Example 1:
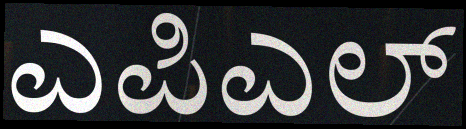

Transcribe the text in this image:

ಎಪಿಎಲ್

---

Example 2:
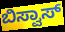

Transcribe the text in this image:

ಬಿಸ್ವಾಸ್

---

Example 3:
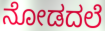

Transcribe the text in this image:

ನೋಡದಲೆ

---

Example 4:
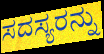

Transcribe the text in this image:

ಸದಸ್ಯರನ್ನು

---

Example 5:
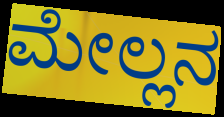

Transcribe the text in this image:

ಮೇಲ್ಲನ